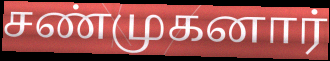
சண்முகனார்